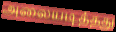
அலையடித்தது